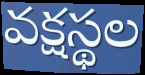
వక్షస్థల